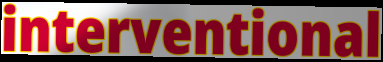
interventional